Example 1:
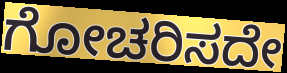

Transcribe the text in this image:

ಗೋಚರಿಸದೇ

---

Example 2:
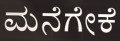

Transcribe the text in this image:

ಮನೆಗೇಕೆ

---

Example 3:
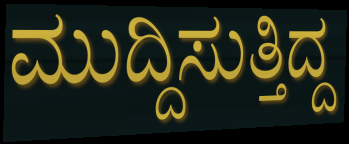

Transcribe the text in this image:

ಮುದ್ದಿಸುತ್ತಿದ್ದ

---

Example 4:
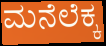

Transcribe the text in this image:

ಮನೆಲೆಕ್ಕ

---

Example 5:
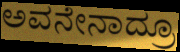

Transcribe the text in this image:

ಅವನೇನಾದ್ರೂ